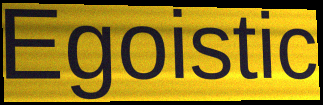
Egoistic